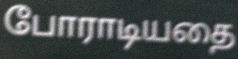
போராடியதை